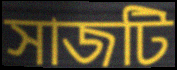
সাজটি